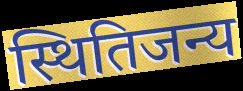
स्थितिजन्य